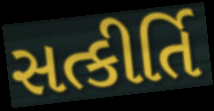
સત્કીર્તિ